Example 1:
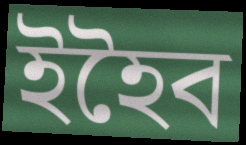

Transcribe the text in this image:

ইহৈব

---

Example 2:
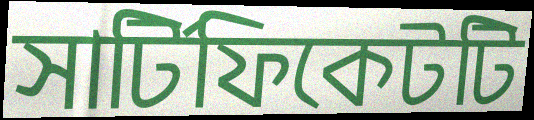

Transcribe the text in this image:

সার্টিফিকেটটি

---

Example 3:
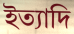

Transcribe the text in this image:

ইত্যাদি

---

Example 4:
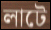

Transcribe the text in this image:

লাটে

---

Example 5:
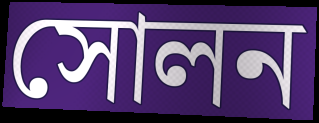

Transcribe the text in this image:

সোলন